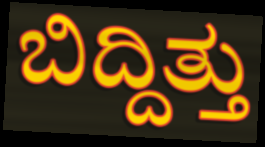
ಬಿದ್ದಿತ್ತು